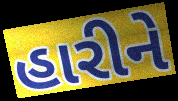
હારીને